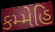
કમ્મેહિ